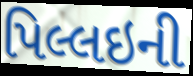
પિલ્લઇની